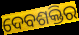
ଦେବଶକ୍ତିର